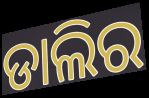
ଡାଲିର